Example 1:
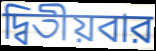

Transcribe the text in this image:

দ্বিতীয়বার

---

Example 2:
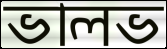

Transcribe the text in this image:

ভালভ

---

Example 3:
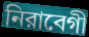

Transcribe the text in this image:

নিরাবেগী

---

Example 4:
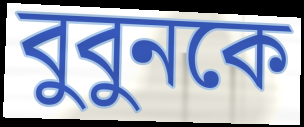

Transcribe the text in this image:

বুবুনকে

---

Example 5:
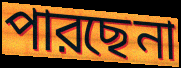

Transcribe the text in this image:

পারছেনা